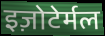
इज़ोटेर्मल